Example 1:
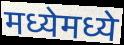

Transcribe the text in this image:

मध्येमध्ये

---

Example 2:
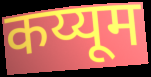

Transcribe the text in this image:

कय्यूम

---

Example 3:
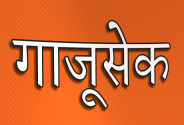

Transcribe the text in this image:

गाजूसेक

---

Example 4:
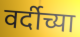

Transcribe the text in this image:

वर्दीच्या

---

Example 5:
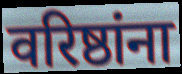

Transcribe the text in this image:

वरिष्ठांना